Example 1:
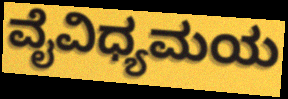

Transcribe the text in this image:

ವೈವಿಧ್ಯಮಯ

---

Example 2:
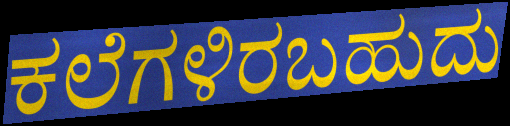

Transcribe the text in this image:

ಕಲೆಗಳಿರಬಹುದು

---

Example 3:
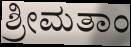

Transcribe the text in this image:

ಶ್ರೀಮತಾಂ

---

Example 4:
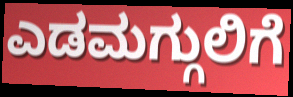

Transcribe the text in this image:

ಎಡಮಗ್ಗುಲಿಗೆ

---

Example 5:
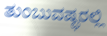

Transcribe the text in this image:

ತುಂಬುವಷ್ಟರಲ್ಲಿ